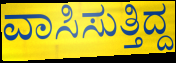
ವಾಸಿಸುತ್ತಿದ್ದ